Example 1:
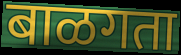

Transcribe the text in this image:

बाळगता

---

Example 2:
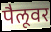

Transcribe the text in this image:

पैलूवर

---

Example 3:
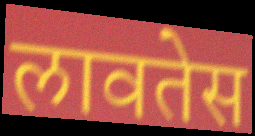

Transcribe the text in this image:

लावतेस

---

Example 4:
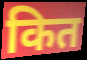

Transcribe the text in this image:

कित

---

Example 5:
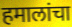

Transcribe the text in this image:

हमालांचा